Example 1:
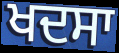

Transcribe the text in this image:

ਖਦਸਾ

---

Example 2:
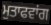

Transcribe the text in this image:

ਮੁਤਾਫਵਾਂਗ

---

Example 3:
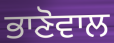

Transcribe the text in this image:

ਭਾਣੋਵਾਲ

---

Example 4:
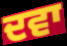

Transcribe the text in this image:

ਦਵਾ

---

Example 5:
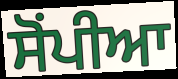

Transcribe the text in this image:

ਸੋਂਪੀਆ